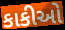
કાકીઓ